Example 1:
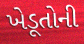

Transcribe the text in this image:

ખેડૂતોની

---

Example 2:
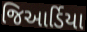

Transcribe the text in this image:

જિઆર્ડિયા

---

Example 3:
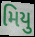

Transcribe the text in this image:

મિયુ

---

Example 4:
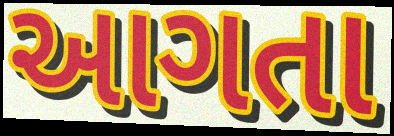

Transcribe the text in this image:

આગતા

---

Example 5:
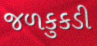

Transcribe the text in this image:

જળકુકડી